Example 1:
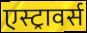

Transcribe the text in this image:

एस्ट्रावर्स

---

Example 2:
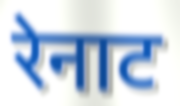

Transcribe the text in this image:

रेनाट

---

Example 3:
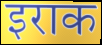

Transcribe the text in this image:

इराक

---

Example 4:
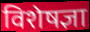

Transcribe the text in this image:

विशेषज्ञा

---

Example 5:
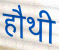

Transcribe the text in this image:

हौथी